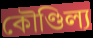
কৌণ্ডিল্য